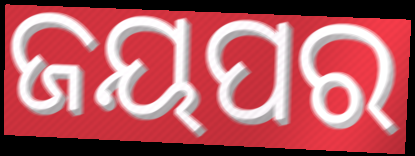
ଜୟପର